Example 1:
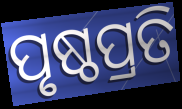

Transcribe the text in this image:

ପୃଷ୍ଠପ୍ରତି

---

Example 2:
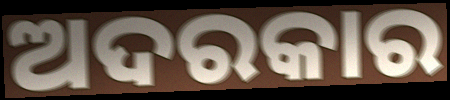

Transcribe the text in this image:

ଅଦରକାର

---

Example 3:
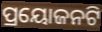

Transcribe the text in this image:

ପ୍ରୟୋଜନଟି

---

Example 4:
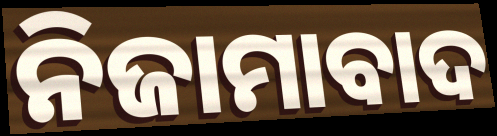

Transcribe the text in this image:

ନିଜାମାବାଦ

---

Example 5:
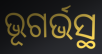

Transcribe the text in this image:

ଭୂଗର୍ଭସ୍ଥ